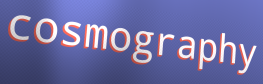
cosmography